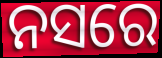
ନସରେ